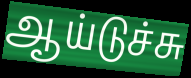
ஆய்டுச்சு